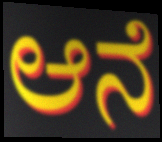
ಆನೆ